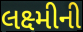
લક્ષ્મીની